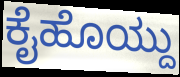
ಕೈಹೊಯ್ದು